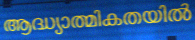
ആദ്ധ്യാത്മികതയിൽ